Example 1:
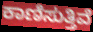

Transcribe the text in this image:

ಕಾಣಿಸುತ್ತಿವೆ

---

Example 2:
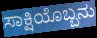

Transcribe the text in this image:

ಸಾಕ್ಷಿಯೊಬ್ಬನು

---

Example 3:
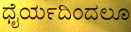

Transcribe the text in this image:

ಧೈರ್ಯದಿಂದಲೂ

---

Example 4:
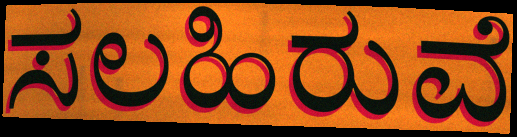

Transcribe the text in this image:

ಸಲಹಿರುವೆ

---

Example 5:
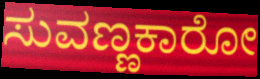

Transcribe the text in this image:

ಸುವಣ್ಣಕಾರೋ